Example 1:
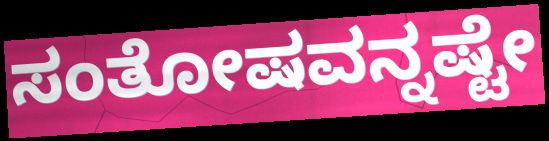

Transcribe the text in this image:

ಸಂತೋಷವನ್ನಷ್ಟೇ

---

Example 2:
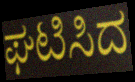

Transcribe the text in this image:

ಘಟಿಸಿದ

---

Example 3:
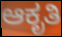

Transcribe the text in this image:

ಆಕೃತಿ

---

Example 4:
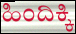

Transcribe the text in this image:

ಹಿಂದಿಕ್ಕಿ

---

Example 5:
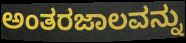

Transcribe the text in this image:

ಅಂತರಜಾಲವನ್ನು